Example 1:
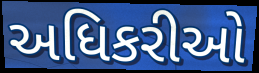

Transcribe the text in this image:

અધિકરીઓ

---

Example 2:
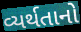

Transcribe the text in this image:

વ્યર્થતાનો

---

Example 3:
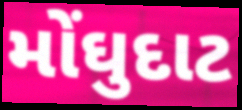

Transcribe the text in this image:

મોંઘુદાટ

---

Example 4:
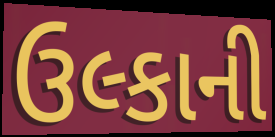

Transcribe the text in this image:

ઉલ્કાની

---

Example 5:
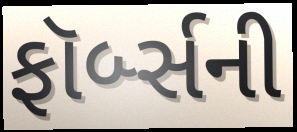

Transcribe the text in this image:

ફૉર્બ્સની